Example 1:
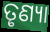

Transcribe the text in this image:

ତୃଣ୍ୟା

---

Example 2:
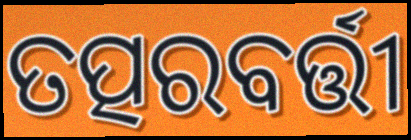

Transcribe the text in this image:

ତତ୍ପରବର୍ତ୍ତୀ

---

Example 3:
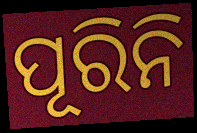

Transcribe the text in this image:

ପୂରିନି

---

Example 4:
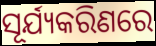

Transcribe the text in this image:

ସୂର୍ଯ୍ୟକରିଣରେ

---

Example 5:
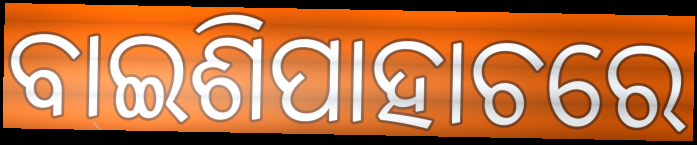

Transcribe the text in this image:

ବାଇଶିପାହାଚରେ